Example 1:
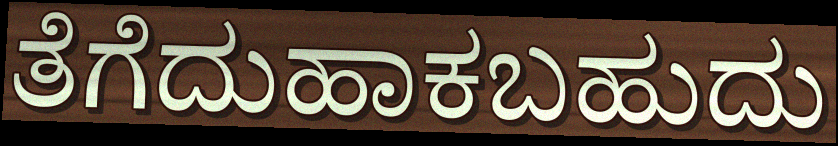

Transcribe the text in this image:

ತೆಗೆದುಹಾಕಬಹುದು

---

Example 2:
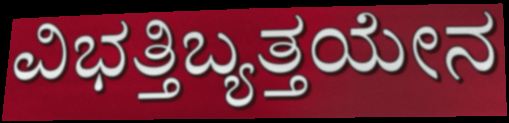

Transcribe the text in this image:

ವಿಭತ್ತಿಬ್ಯತ್ತಯೇನ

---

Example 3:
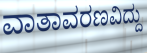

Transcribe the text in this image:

ವಾತಾವರಣವಿದ್ದು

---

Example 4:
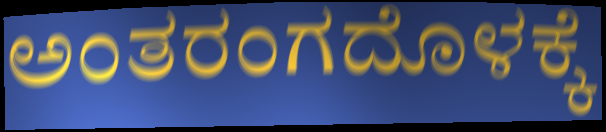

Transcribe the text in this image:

ಅಂತರಂಗದೊಳಕ್ಕೆ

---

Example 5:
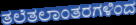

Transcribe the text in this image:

ತಲೆತಲಾಂತರಗಳಿಂದ